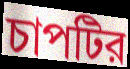
চাপটির